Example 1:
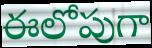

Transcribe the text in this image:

ఈలోపుగా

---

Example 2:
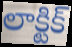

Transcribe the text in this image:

లాక్టిక్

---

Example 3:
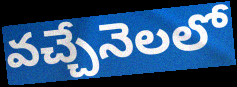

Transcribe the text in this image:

వచ్చేనెలలో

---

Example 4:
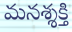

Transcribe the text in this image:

మనశ్శక్తి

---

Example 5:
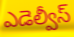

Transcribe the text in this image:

ఎడెల్వీస్